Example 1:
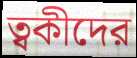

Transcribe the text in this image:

ত্বকীদের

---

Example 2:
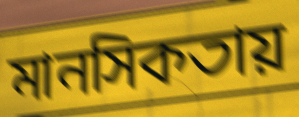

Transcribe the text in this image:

মানসিকতায়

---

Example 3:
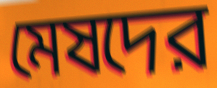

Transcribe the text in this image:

মেষদের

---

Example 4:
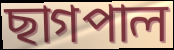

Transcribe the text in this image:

ছাগপাল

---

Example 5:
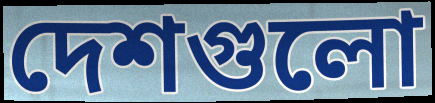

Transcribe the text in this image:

দেশগুলো